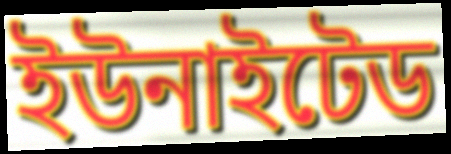
ইউনাইটেড